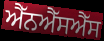
ਐੱਨਐੱਸਐੱਸ